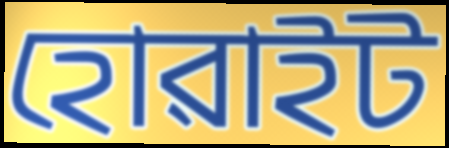
হোৱাইট